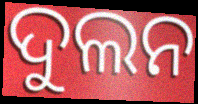
ଦୁଲନ